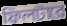
ফিলটারে